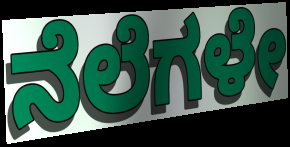
ನೆಲೆಗಳೇ